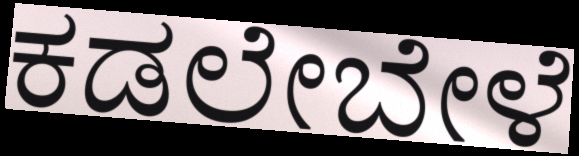
ಕಡಲೇಬೇಳೆ